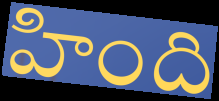
హింది